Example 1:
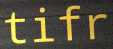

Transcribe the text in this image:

tifr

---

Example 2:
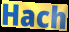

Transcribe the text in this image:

Hach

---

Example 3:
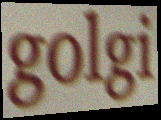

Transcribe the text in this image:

golgi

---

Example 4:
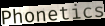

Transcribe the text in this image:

Phonetics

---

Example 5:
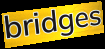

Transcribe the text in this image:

bridges